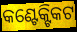
କଣ୍ଟେକ୍ଟିକଟ